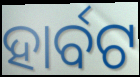
ହାର୍ବଟ